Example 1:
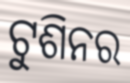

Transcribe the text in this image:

ଟୁଶିନର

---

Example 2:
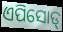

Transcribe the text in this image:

ଏପିସୋଡ୍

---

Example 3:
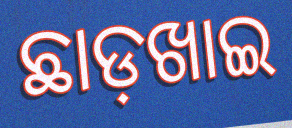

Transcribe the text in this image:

ଛାଡ଼ଖାଇ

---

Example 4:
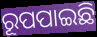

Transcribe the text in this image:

ରୂପପାଇଛି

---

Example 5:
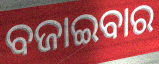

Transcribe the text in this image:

ବଜାଇବାର